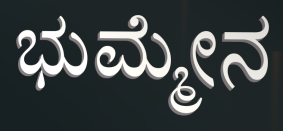
ಭುಮ್ಮೇನ